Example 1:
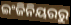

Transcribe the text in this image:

ଇଂଜିନିୟରରୁ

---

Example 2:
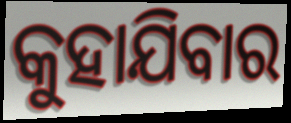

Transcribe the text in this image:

କୁହାଯିବାର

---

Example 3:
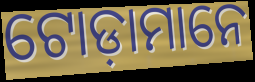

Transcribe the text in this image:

ଟୋଡ଼ାମାନେ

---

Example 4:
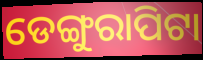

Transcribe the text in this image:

ଡେଙ୍ଗୁରାପିଟା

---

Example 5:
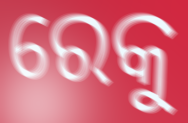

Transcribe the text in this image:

ରେକୁ